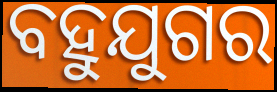
ବହୁଯୁଗର